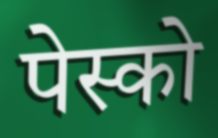
पेस्को